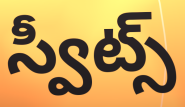
స్వీట్స్